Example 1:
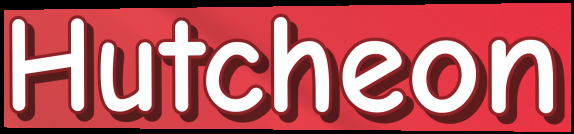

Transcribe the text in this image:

Hutcheon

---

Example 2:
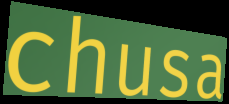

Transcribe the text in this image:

chusa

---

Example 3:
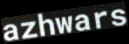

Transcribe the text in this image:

azhwars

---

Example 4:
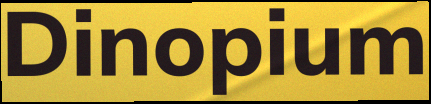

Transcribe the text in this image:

Dinopium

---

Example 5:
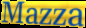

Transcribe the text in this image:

Mazza